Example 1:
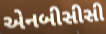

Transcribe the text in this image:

એનબીસીસી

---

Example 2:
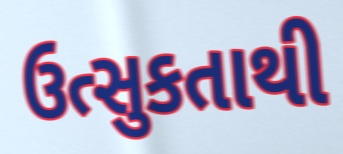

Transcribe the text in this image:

ઉત્સુકતાથી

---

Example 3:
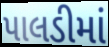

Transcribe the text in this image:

પાલડીમાં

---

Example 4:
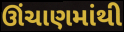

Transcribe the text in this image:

ઊંચાણમાંથી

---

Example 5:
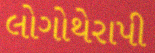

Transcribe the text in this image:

લોગોથેરાપી